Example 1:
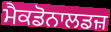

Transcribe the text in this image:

ਮੈਕਡੋਨਾਲਡਜ਼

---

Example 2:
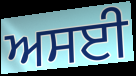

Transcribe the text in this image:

ਅਸਈ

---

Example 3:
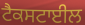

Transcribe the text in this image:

ਟੈਕਸਟਾਈਲ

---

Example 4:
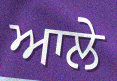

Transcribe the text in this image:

ਆਲੇ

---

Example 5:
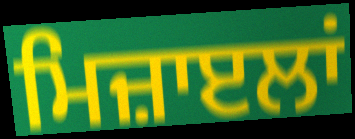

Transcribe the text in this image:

ਮਿਜ਼ਾੲਲਾਂ